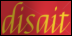
disait